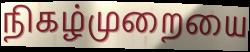
நிகழ்முறையை